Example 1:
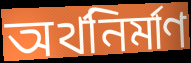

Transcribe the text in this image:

অর্থনির্মাণ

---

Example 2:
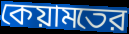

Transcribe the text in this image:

কেয়ামতের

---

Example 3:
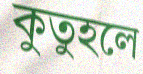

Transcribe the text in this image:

কুতুহলে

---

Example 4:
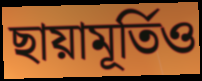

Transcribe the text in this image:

ছায়ামূর্তিও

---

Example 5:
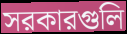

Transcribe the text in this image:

সরকারগুলি